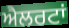
ਐਲਰਟਾਂ